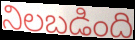
నిలబడింది